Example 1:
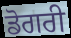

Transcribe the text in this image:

ਡੋਗਰੀ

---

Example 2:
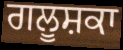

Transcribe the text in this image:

ਗਲੂਸ਼ਕਾ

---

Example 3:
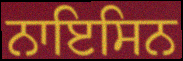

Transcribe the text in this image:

ਨਾਇਸਿਨ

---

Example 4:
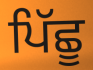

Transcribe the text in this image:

ਪਿੱਛੂ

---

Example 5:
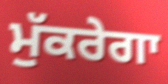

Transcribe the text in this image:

ਮੁੱਕਰੇਗਾ